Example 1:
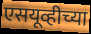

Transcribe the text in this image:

एसयूव्हीच्या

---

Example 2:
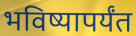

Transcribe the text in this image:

भविष्यापर्यंत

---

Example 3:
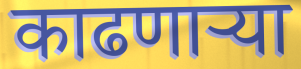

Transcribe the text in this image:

काढणार्‍या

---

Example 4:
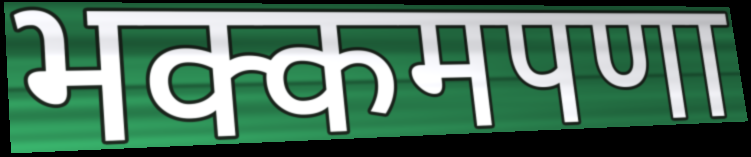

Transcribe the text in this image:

भक्कमपणा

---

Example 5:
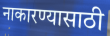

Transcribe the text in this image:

नाकारण्यासाठी